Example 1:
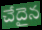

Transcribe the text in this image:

చేదైన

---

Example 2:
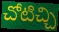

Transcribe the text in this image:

చోటిచ్చి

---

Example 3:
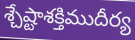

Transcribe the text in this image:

శ్చేష్టాశక్తిముదీర్య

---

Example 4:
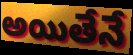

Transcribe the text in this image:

అయితేనే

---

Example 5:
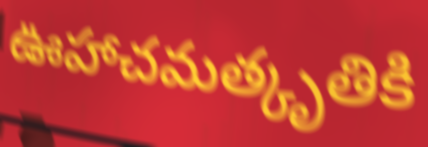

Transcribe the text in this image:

ఊహాచమత్కృతికి